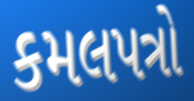
કમલપત્રો